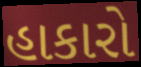
હાકારો